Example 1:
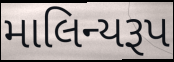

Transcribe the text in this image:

માલિન્યરૂપ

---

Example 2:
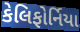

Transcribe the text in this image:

કેલિફોર્નિયા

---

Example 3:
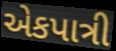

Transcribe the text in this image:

એકપાત્રી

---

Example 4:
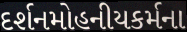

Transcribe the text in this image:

દર્શનમોહનીયકર્મના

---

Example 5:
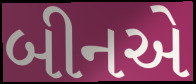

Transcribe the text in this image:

બીનએ